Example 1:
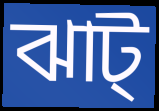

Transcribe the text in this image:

ঝাট্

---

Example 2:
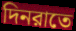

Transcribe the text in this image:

দিনরাতে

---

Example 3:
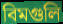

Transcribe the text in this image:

বিমগুলি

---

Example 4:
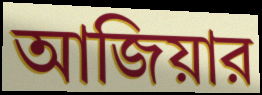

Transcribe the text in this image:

আজিয়ার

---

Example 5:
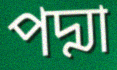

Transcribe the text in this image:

পদ্মা